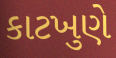
કાટખુણે